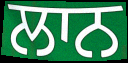
ਲਾਨ